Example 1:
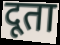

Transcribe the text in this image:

दूता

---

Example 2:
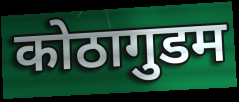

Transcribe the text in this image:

कोठागुडम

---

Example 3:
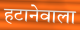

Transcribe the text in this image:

हटानेवाला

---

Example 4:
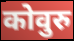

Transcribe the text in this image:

कोवुरु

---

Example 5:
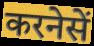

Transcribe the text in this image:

करनेसें